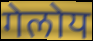
गेलोय